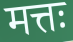
मत्तः